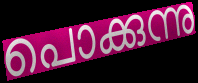
പൊക്കുന്നു